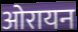
ओरायन